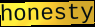
honesty